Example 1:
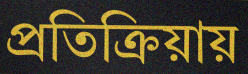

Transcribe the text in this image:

প্রতিক্রিয়ায়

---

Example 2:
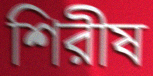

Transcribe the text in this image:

শিরীষ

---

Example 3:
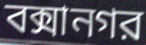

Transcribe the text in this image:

বক্সানগর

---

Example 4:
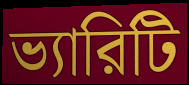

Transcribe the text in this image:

ভ্যারিটি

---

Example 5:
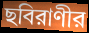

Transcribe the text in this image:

ছবিরাণীর